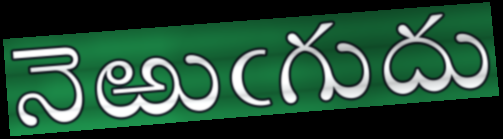
నెఱుఁగుదు